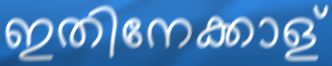
ഇതിനേക്കാള്